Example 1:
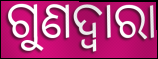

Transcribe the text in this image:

ଗୁଣଦ୍ଵାରା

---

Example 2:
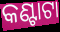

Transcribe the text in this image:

କଣ୍ଟାଟା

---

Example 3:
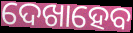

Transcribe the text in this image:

ଦେଖାହେବ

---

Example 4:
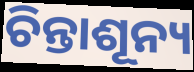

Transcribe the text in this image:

ଚିନ୍ତାଶୂନ୍ୟ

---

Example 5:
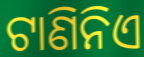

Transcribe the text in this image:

ଟାଣିନିଏ